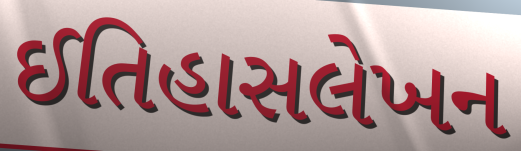
ઈતિહાસલેખન